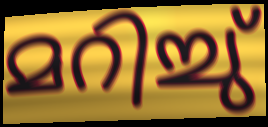
മറിച്ചു്